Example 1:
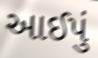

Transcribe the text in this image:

આઈપું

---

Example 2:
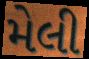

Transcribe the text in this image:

મેલી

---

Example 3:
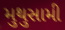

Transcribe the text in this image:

મુથુસામી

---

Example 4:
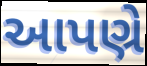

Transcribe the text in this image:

આપણ્રે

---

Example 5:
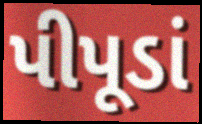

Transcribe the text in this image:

પીપૂડાં